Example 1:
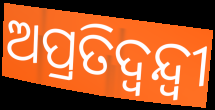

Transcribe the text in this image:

ଅପ୍ରତିଦ୍ବନ୍ଦ୍ବୀ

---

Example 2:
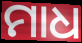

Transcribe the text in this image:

ମାଧ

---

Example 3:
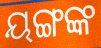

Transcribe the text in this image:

ୟଙ୍ଗଙ୍କ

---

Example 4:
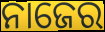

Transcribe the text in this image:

ନାଜେର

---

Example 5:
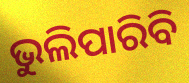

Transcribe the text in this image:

ଭୁଲିପାରିବି